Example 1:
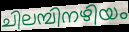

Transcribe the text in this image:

ചിലമ്പിനഴിയം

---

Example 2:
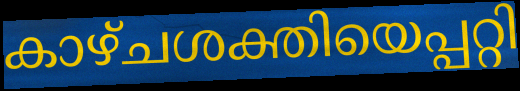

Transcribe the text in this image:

കാഴ്ചശക്തിയെപ്പറ്റി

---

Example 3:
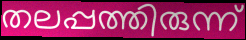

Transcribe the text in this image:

തലപ്പത്തിരുന്ന്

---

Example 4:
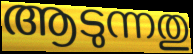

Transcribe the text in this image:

ആടുന്നതു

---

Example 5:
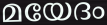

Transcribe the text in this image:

മയേദം